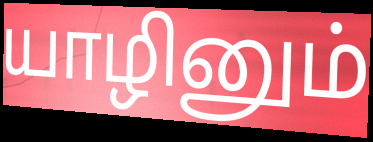
யாழினும்